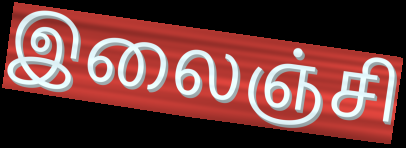
இலைஞ்சி